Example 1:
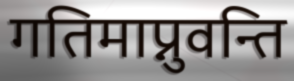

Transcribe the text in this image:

गतिमाप्नुवन्ति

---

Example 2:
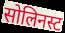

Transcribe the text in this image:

सोलिनस्ट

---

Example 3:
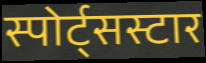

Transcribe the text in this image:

स्पोर्ट्सस्टार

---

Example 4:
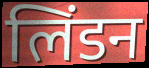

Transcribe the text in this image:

लिंडन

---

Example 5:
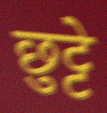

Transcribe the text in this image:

छुट्टे